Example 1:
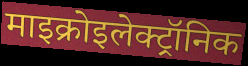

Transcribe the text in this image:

माइक्रोइलेक्ट्रॉनिक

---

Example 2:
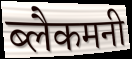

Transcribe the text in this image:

ब्लैकमनी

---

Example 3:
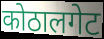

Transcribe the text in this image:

कोठालगेट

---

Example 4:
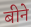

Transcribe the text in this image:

बीने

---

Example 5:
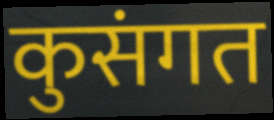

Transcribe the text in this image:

कुसंगत